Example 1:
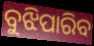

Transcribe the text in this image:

ବୁଝିପାରିବ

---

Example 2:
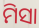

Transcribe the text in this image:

ମିସା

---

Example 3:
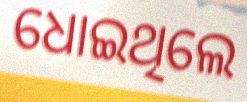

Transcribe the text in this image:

ଧୋଇଥିଲେ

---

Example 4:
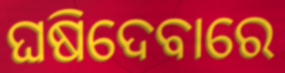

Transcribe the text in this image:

ଘଷିଦେବାରେ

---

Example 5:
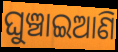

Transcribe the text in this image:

ଘୁଞ୍ଚାଇଆଣି